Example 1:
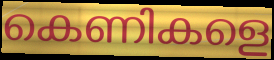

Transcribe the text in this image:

കെണികളെ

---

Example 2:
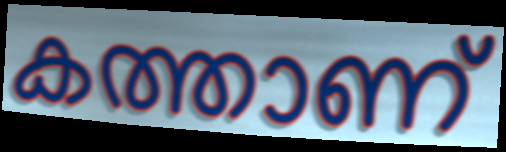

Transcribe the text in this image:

കത്താണ്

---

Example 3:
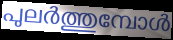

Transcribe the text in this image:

പുലർത്തുമ്പോൾ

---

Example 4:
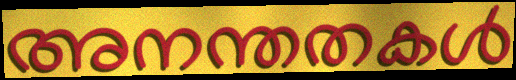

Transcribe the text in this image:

അനന്തതകൾ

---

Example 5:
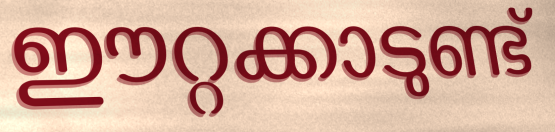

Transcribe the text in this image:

ഈറ്റക്കാടുണ്ട്